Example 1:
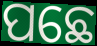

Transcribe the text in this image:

ପଛେ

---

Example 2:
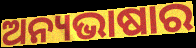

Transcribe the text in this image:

ଅନ୍ୟଭାଷାର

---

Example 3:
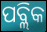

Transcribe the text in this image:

ପବ୍ଲିକ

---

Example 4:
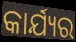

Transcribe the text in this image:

କାର୍ଯ୍ୟର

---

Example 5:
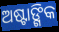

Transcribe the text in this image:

ଅଷ୍ଟାଙ୍ଗିକ